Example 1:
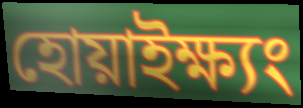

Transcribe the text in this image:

হোয়াইক্ষ্যং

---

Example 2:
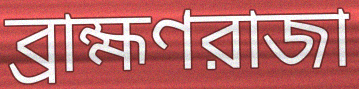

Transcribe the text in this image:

ব্রাহ্মণরাজা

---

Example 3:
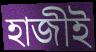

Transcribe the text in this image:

হাজীই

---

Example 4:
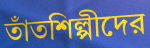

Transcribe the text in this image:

তাঁতশিল্পীদের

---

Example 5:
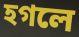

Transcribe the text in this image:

হগলে